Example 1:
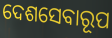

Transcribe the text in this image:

ଦେଶସେବାରୂପ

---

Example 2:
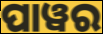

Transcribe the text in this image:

ପାୱର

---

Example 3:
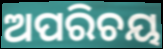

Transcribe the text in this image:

ଅପରିଚୟ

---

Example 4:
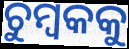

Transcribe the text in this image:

ଚୁମ୍ୱକକୁ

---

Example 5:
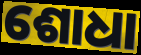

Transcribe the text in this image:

ଶୋଧା